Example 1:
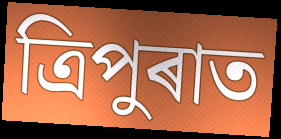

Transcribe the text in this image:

ত্ৰিপুৰাত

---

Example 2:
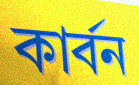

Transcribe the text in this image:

কাৰ্বন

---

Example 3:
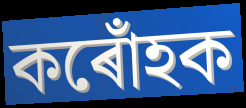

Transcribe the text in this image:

কৰোঁহক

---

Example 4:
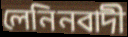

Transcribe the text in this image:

লেনিনবাদী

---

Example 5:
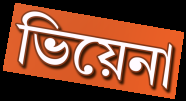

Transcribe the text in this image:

ভিয়েনা